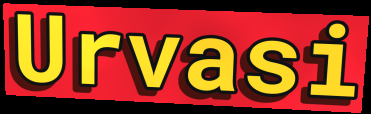
Urvasi